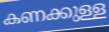
കണക്കുള്ള